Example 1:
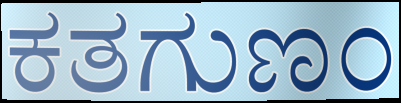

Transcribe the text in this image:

ಕತಗುಣಂ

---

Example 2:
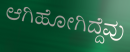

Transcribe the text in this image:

ಆಗಿಹೋಗಿದ್ದೆವು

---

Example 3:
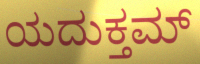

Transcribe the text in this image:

ಯದುಕ್ತಮ್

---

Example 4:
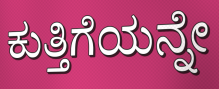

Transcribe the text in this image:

ಕುತ್ತಿಗೆಯನ್ನೇ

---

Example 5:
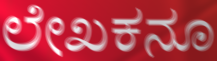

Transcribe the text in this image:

ಲೇಖಕನೂ